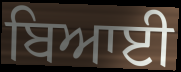
ਬਿਆਈ